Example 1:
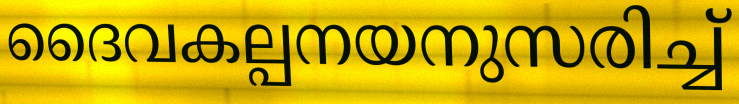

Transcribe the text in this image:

ദൈവകല്പനയനുസരിച്ച്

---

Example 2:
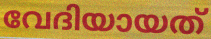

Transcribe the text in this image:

വേദിയായത്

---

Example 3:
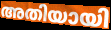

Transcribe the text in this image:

അതിയായി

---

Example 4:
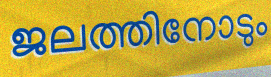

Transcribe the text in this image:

ജലത്തിനോടും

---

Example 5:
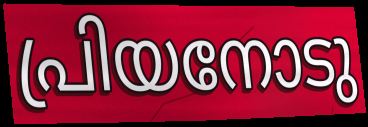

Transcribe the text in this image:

പ്രിയനോടു